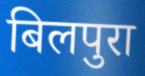
बिलपुरा